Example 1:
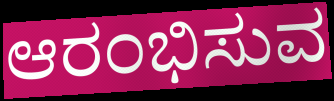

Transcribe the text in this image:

ಆರಂಭಿಸುವ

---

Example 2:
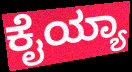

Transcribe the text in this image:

ಕೈಯ್ಯಾ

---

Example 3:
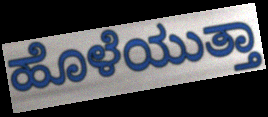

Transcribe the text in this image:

ಹೊಳೆಯುತ್ತಾ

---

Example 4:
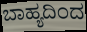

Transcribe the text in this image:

ಬಾಹ್ಯದಿಂದ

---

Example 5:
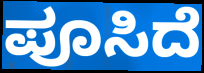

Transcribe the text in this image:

ಪೂಸಿದೆ